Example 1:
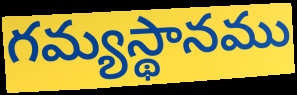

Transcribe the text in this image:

గమ్యస్థానము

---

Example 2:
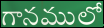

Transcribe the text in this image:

గానములో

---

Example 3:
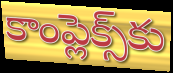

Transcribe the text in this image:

కాంప్లెక్స్‌కు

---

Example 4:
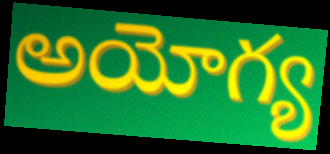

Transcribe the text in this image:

అయోగ్య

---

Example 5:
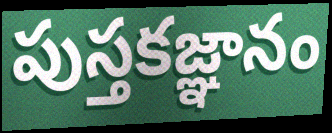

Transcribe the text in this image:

పుస్తకజ్ఞానం